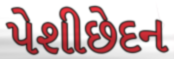
પેશીછેદન